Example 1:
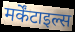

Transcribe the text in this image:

मर्केंटाइल्स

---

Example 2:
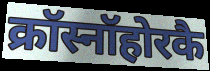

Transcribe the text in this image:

क्रॉस्नॉहोरकै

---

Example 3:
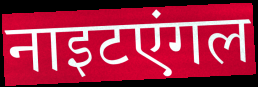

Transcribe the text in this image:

नाइटएंगल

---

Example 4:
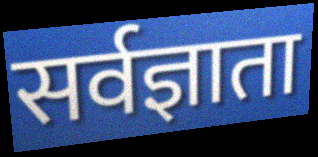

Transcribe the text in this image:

सर्वज्ञाता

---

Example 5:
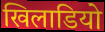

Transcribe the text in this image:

खिलाडियो